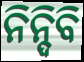
ନିନ୍ଦିବି